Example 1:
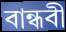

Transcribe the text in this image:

বান্ধবী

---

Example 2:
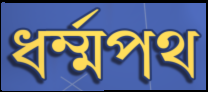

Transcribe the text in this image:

ধর্ম্মপথ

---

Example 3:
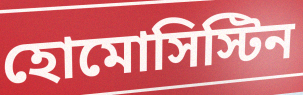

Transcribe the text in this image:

হোমোসিস্টিন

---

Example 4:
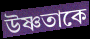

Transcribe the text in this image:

উষ্ণতাকে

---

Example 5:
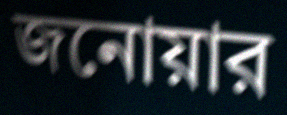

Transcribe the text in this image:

জনোয়ার